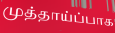
முத்தாய்ப்பாக